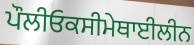
ਪੌਲੀਓਕਸੀਮੇਥਾਈਲੀਨ